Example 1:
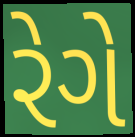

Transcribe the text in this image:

રેગે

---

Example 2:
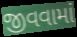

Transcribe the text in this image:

જીવવામાં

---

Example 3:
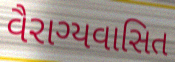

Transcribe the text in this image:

વૈરાગ્યવાસિત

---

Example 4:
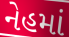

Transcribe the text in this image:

નેહમાં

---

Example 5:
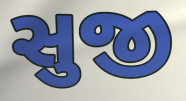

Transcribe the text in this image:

સુજી